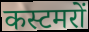
कस्टमरों